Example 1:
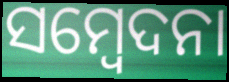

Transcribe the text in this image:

ସମ୍ବେଦନା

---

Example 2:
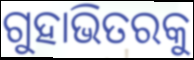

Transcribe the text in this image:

ଗୁହାଭିତରକୁ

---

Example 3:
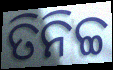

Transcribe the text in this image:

ତିନିଚ୍ଚ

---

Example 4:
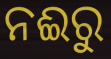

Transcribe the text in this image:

ନଈରୁ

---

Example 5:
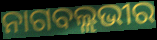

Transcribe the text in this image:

ନାଗବଲ୍ଲଭୀର